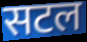
सटल